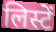
लिस्टें